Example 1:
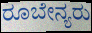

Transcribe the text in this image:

ರೂಬೇನ್ಯರು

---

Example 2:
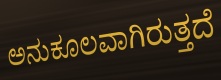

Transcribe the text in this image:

ಅನುಕೂಲವಾಗಿರುತ್ತದೆ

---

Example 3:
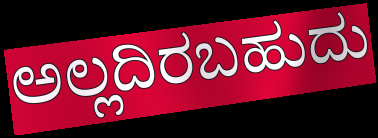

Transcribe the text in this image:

ಅಲ್ಲದಿರಬಹುದು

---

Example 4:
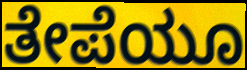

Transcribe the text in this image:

ತೇಪೆಯೂ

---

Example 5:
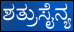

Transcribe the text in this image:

ಶತ್ರುಸೈನ್ಯ